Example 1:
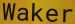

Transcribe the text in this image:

Waker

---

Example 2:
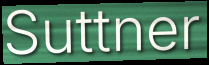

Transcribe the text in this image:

Suttner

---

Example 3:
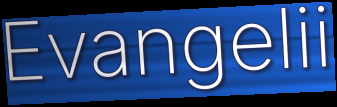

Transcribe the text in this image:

Evangelii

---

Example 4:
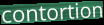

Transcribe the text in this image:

contortion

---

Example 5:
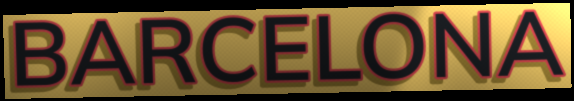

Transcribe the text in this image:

BARCELONA